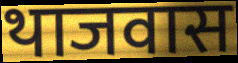
थाजवास